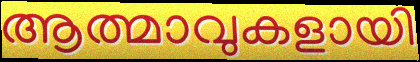
ആത്മാവുകളായി